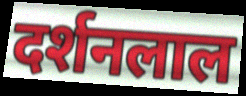
दर्शनलाल